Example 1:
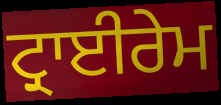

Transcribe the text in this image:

ਟ੍ਰਾਈਰੇਮ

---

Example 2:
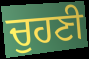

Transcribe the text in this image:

ਚੁਹਣੀ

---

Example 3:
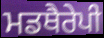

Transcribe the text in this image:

ਮਡਥੈਰੇਪੀ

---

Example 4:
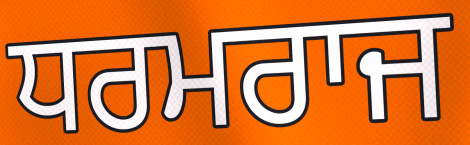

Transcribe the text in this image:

ਧਰਮਰਾਜ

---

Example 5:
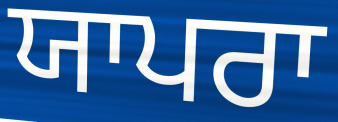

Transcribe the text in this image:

ਯਾਪਰਾ